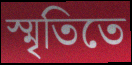
স্মৃতিতে